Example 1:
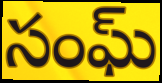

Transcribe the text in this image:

సంఘ్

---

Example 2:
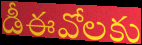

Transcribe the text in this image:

డీఈవోలకు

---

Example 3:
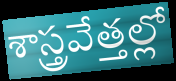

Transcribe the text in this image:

శాస్త్రవేత్తల్లో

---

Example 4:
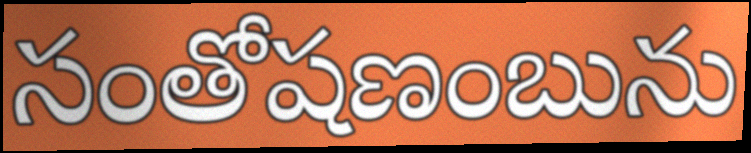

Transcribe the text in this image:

సంతోషణంబును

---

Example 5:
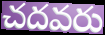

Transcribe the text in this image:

చదవరు